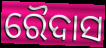
ରୈଦାସ